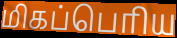
மிகப்பெரிய